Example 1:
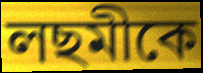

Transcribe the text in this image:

লছমীকে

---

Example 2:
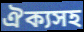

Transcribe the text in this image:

ঐক্যসহ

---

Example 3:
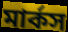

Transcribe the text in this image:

মার্কস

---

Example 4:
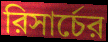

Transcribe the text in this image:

রিসার্চের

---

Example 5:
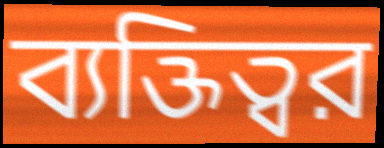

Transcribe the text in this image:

ব্যক্তিত্বর